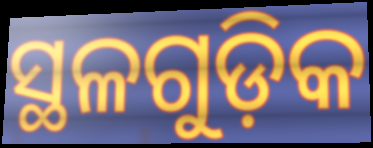
ସ୍ଥଳଗୁଡ଼ିକ